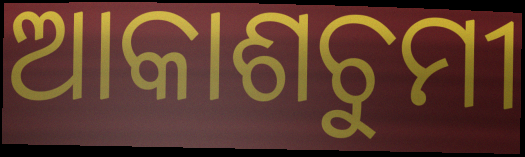
ଆକାଶଚୁମୀ